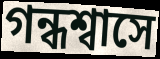
গন্ধশ্বাসে